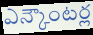
ఎన్కౌంటర్ల